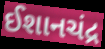
ઈશાનચંદ્ર